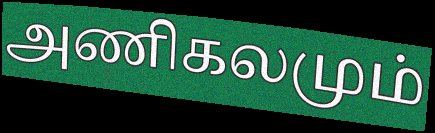
அணிகலமும்